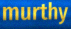
murthy